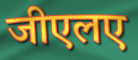
जीएलए